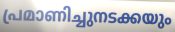
പ്രമാണിച്ചുനടക്കയും